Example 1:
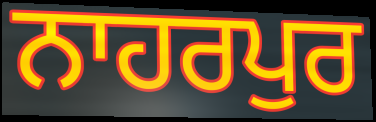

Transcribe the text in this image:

ਨਾਹਰਪੁਰ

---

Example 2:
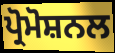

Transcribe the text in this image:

ਪ੍ਰੋਮੋਸ਼ਨਲ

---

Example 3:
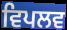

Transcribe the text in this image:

ਵਿਪਲਵ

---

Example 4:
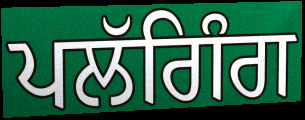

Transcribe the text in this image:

ਪਲੱਗਿੰਗ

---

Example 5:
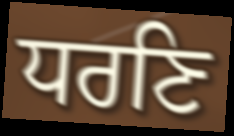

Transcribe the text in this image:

ਧਰਣਿ